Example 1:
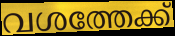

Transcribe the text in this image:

വശത്തേക്ക്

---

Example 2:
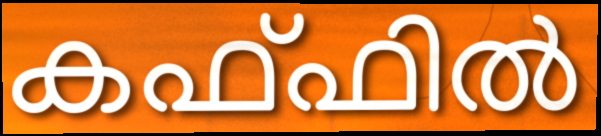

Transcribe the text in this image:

കഫ്ഫിൽ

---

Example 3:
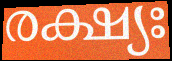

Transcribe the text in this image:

രക്ഷ്യഃ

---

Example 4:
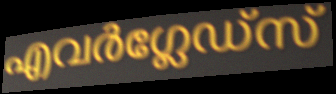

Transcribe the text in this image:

എവർഗ്ലേഡ്സ്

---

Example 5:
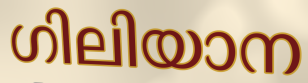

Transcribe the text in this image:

ഗിലിയാന